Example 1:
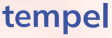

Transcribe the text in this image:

tempel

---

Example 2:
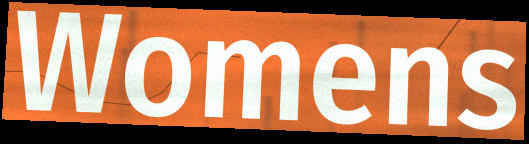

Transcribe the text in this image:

Womens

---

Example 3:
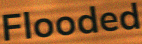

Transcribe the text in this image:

Flooded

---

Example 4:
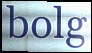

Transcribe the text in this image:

bolg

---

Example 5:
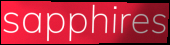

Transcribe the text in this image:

sapphires